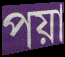
পয়া